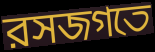
রসজগতে